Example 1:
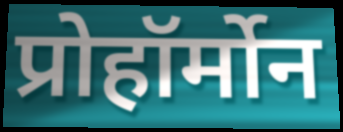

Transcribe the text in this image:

प्रोहॉर्मोन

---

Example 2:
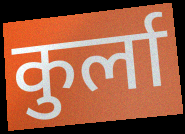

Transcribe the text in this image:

कुर्ला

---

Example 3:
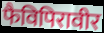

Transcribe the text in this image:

फैविपिरावीर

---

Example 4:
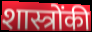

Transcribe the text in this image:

शास्त्रोंकी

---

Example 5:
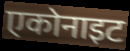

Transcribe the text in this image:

एकोनाइट